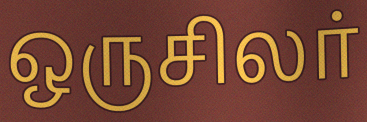
ஒருசிலர்